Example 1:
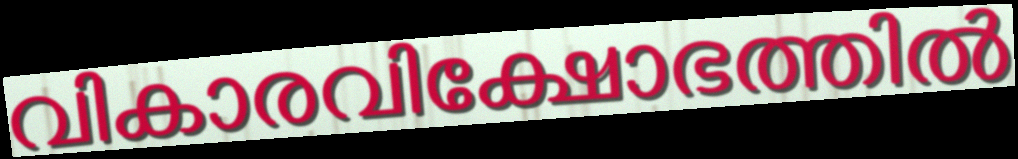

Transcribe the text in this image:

വികാരവിക്ഷോഭത്തിൽ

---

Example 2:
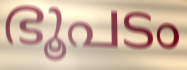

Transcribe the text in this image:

ഭൂപടം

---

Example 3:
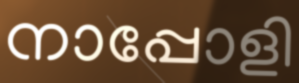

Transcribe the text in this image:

നാപ്പോളി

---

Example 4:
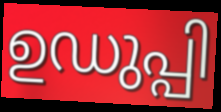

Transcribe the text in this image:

ഉഡുപ്പി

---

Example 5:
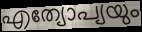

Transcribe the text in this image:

എത്യോപ്യയും